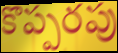
కొప్పరపు